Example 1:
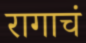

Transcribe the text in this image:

रागाचं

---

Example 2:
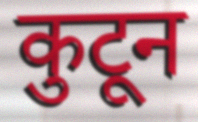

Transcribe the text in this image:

कुटून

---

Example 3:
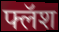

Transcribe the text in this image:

फ्लॅश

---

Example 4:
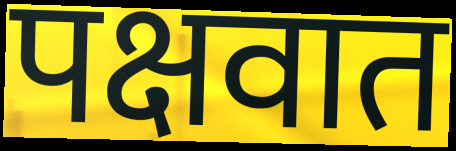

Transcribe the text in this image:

पक्षवात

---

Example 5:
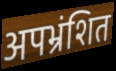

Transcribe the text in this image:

अपभ्रंशित